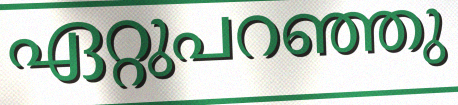
ഏറ്റുപറഞ്ഞു